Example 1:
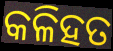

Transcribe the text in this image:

କଳିହତ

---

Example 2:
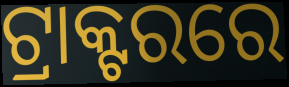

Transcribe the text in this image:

ଟ୍ରାକ୍ଟରରେ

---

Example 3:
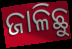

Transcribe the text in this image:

ଜାଳିଛୁ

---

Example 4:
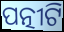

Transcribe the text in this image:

ପତ୍ନୀଟି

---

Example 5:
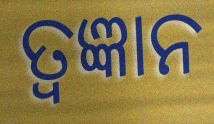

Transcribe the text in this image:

ତ୍ୱଜ୍ଞାନ